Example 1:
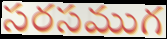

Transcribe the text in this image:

సరసముగ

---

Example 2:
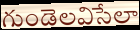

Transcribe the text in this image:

గుండెలవిసేలా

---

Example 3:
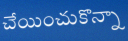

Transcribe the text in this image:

చేయించుకొన్నా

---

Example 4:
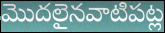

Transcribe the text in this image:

మొదలైనవాటిపట్ల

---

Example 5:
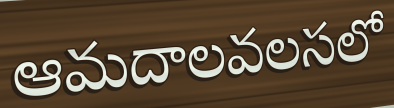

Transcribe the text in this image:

ఆమదాలవలసలో